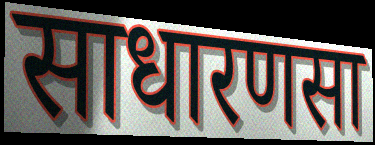
साधारणसा